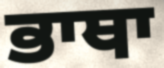
ਭਾਥਾ